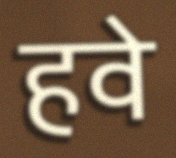
हवे